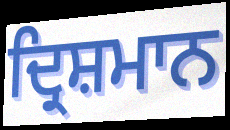
ਦ੍ਰਿਸ਼ਮਾਨ